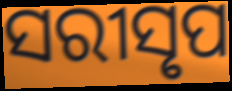
ସରୀସୃପ